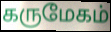
கருமேகம்